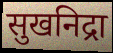
सुखनिद्रा